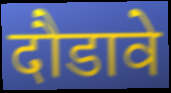
दौडावे